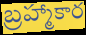
బ్రహ్మాకార